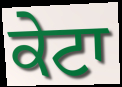
ਕੇਟਾ